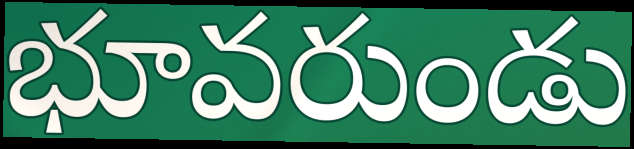
భూవరుండు